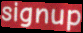
signup